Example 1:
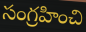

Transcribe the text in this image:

సంగ్రహించి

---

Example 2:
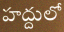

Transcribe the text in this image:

హద్దులో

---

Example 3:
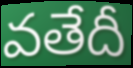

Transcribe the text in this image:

వతేదీ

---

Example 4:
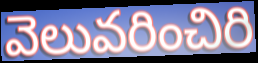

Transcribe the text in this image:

వెలువరించిరి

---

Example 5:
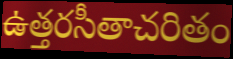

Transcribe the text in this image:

ఉత్తరసీతాచరితం